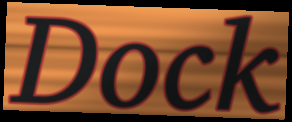
Dock